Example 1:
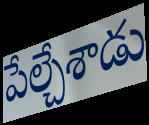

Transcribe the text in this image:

పేల్చేశాడు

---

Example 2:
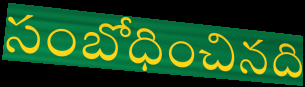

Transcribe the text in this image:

సంబోధించినది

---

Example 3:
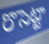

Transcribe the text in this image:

రొసెట్టా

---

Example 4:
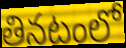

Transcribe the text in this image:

తినటంలో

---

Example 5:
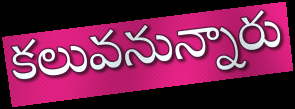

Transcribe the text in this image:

కలువనున్నారు